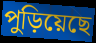
পুড়িয়েছে